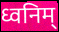
ध्वनिम्